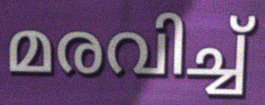
മരവിച്ച്